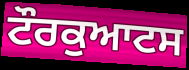
ਟੌਰਕੁਆਟਸ